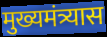
मुख्यमंत्र्यास